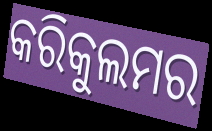
କରିକୁଲମର